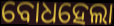
ବୋଧହେଲା